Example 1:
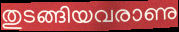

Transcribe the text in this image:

തുടങ്ങിയവരാണു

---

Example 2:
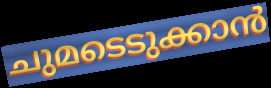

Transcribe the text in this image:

ചുമടെടുക്കാൻ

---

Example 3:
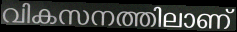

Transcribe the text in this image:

വികസനത്തിലാണ്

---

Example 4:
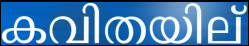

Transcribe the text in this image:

കവിതയില്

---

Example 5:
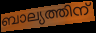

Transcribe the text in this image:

ബാല്യത്തിന്